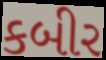
કબીર